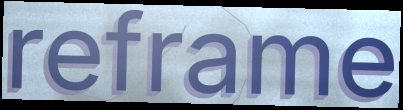
reframe